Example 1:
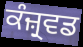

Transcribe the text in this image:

ਕੰਜ਼੍ਰਵਡ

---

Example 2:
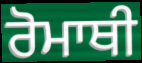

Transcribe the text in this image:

ਰੋਮਾਥੀ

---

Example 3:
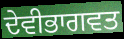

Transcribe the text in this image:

ਦੇਵੀਭਾਗਵਤ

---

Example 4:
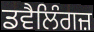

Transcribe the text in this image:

ਡਵੈਲਿੰਗਜ਼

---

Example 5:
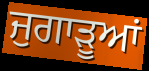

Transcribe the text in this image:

ਜੁਗਾੜੂਆਂ